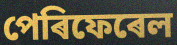
পেৰিফেৰেল